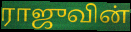
ராஜுவின்